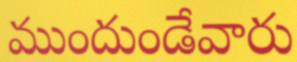
ముందుండేవారు